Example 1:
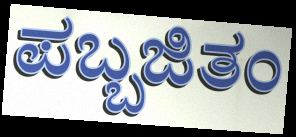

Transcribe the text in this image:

ಪಬ್ಬಜಿತಂ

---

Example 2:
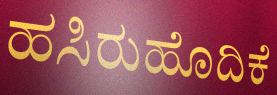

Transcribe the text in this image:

ಹಸಿರುಹೊದಿಕೆ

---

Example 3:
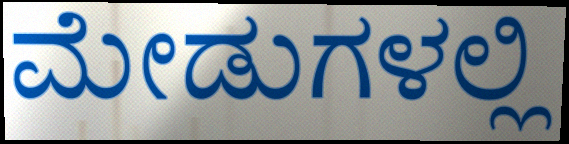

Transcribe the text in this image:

ಮೇಡುಗಳಲ್ಲಿ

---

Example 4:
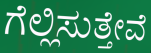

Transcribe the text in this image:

ಗೆಲ್ಲಿಸುತ್ತೇವೆ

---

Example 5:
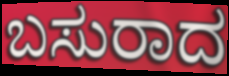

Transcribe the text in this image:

ಬಸುರಾದ